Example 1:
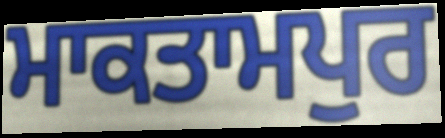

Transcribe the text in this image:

ਮਾਕਤਾਮਪੁਰ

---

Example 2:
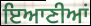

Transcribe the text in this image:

ਇਆਣੀਆਂ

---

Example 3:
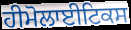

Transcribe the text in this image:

ਹੀਮੋਲਾਈਟਿਕਸ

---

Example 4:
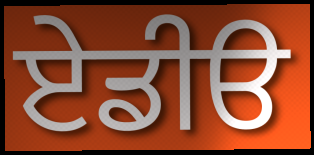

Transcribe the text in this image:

ਏਡੀੳ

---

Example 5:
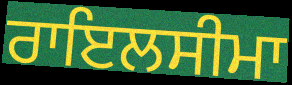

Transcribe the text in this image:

ਰਾਇਲਸੀਮਾ